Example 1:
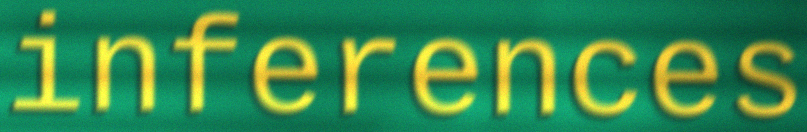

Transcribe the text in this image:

inferences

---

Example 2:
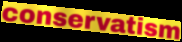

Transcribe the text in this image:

conservatism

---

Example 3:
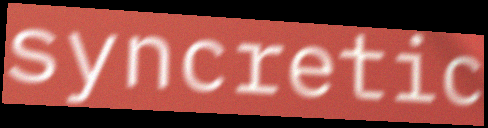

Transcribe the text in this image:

syncretic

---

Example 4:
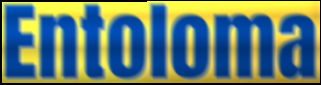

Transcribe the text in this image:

Entoloma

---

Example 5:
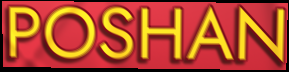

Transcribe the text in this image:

POSHAN